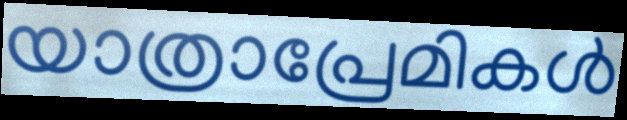
യാത്രാപ്രേമികൾ